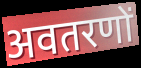
अवतरणों